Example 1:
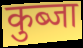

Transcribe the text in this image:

कुब्जा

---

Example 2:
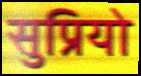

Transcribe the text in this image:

सुप्रियो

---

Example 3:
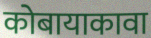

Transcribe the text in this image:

कोबायाकावा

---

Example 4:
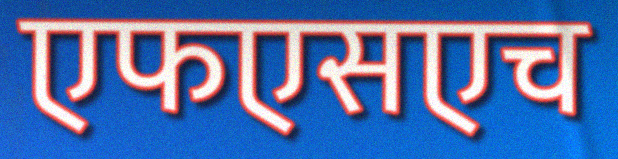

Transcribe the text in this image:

एफएसएच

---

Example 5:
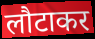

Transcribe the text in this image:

लौटाकर